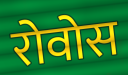
रोवोस